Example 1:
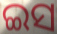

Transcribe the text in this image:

ଇସ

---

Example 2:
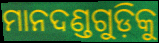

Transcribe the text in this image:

ମାନଦଣ୍ଡଗୁଡ଼ିକୁ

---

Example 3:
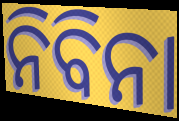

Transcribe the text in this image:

ନିବିନା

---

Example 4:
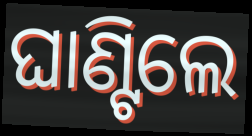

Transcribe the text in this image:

ଘାଣ୍ଟିଲେ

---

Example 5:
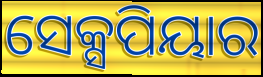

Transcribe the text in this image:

ସେକ୍ସପିୟାର